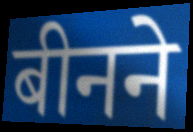
बीनने